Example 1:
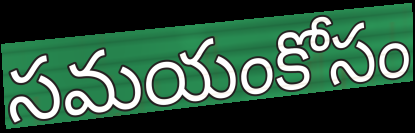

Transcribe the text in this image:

సమయంకోసం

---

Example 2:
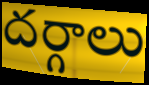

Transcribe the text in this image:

దర్గాలు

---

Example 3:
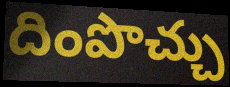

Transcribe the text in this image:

దింపొచ్చు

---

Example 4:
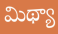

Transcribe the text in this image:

మిథ్యా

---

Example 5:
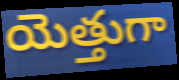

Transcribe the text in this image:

యెత్తుగా